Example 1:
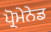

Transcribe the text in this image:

ਪ੍ਰੋਮੇਨੇਡ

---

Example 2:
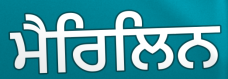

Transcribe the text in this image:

ਮੈਰਿਲਿਨ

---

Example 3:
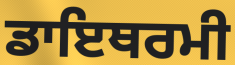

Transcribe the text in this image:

ਡਾਇਥਰਮੀ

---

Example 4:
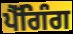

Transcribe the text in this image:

ਪੈੱਗਿੰਗ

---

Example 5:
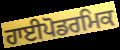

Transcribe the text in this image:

ਹਾਈਪੋਡਰਮਿਕ